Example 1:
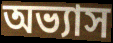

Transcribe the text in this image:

অভ্যাস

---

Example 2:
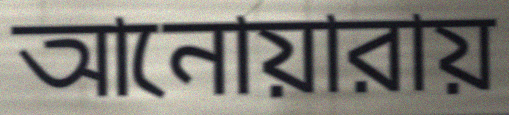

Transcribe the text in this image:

আনোয়ারায়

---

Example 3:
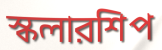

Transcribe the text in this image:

স্কলারশিপ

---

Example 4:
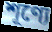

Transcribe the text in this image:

শূণ্যে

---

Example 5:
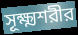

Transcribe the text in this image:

সূক্ষ্মশরীর